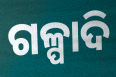
ଗଳ୍ପାଦି